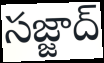
సజ్జాద్